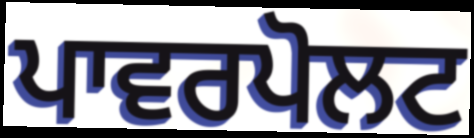
ਪਾਵਰਪੋਲਟ